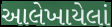
આલેખાયેલાં